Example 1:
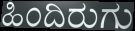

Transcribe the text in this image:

ಹಿಂದಿರುಗು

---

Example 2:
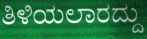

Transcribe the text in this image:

ತಿಳಿಯಲಾರದ್ದು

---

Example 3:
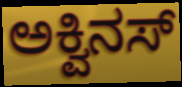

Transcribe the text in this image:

ಅಕ್ವಿನಸ್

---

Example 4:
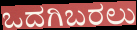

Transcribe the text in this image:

ಒದಗಿಬರಲು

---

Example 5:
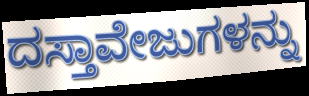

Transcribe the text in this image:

ದಸ್ತಾವೇಜುಗಳನ್ನು